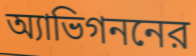
অ্যাভিগননের